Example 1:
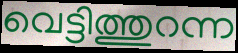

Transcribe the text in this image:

വെട്ടിത്തുറന്ന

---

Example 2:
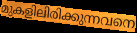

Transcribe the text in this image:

മുകളിലിരിക്കുന്നവനെ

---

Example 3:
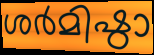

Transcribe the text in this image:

ശർമിഷ്ഠാ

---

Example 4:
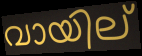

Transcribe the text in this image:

വായില്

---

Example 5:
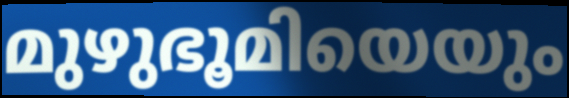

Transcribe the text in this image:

മുഴുഭൂമിയെയും